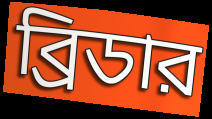
ব্রিডার